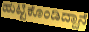
ಹುಟ್ಟಿಕೊಂಡಿದ್ದಾನೆ